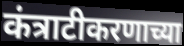
कंत्राटीकरणाच्या